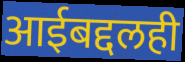
आईबद्दलही